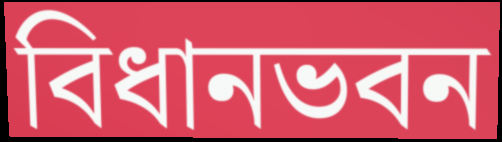
বিধানভবন